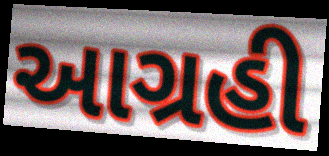
આગ્રહી